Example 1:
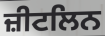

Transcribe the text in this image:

ਜ਼ੀਟਲਿਨ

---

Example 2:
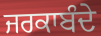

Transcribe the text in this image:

ਜਰਕਾਬੰਦੇ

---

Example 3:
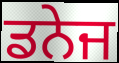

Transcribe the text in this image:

ਡਨੇਜ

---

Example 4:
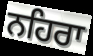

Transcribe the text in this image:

ਨਹਿਰਾ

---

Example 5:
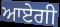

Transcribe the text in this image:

ਆਏਗੀ